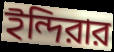
ইন্দিরার